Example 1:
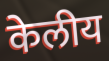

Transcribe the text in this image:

केलीय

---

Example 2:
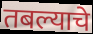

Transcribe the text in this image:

तबल्याचे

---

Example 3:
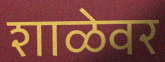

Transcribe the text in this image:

शाळेवर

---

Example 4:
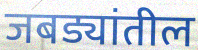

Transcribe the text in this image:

जबड्यांतील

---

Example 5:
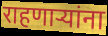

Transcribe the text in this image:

राहणाऱ्यांना